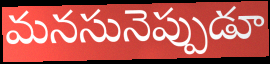
మనసునెప్పుడూ